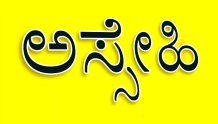
ಅಸ್ಸೇಹಿ